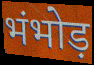
भंभोड़